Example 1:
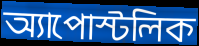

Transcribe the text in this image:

অ্যাপোস্টলিক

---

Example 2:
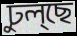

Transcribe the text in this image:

ঢুল্‌ছে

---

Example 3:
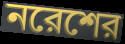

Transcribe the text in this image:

নরেশের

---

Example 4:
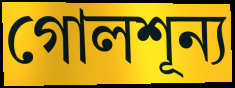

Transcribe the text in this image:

গোলশূন্য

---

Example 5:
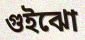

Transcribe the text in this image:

গুইঝো